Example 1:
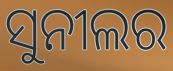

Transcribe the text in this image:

ସୁନୀଲର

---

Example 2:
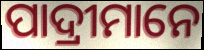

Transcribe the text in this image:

ପାଦ୍ରୀମାନେ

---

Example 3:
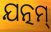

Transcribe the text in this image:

ଯତ୍ନମ୍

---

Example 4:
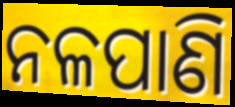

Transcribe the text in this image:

ନଳପାଣି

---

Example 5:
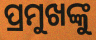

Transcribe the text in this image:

ପ୍ରମୁଖଙ୍କୁ